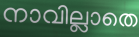
നാവില്ലാതെ